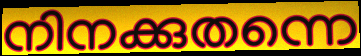
നിനക്കുതന്നെ